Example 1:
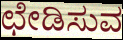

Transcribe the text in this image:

ಛೇಡಿಸುವ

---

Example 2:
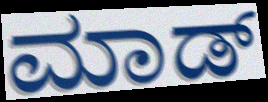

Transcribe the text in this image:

ಮಾಡ್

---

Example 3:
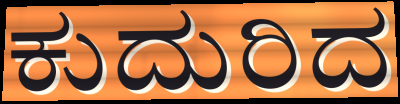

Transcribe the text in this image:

ಕುದುರಿದ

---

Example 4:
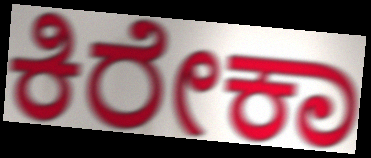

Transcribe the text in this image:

ಕಿರೇಕಾ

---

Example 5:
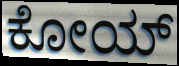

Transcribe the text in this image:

ಕೋಯ್